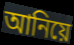
আনিয়ে